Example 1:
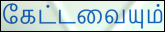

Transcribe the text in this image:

கேட்டவையும்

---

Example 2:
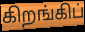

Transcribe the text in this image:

கிறங்கிப்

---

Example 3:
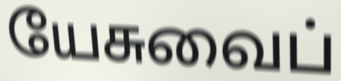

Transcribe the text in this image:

யேசுவைப்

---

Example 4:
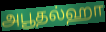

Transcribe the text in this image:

அபூதல்ஹா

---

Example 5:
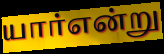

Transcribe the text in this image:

யார்என்று